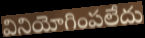
వినియోగింపలేదు